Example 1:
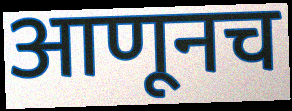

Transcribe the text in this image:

आणूनच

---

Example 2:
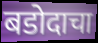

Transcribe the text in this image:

बडोदाचा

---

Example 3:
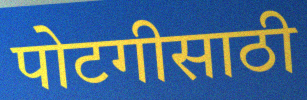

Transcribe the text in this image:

पोटगीसाठी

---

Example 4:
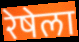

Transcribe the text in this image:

रेषेला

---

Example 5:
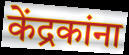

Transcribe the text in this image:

केंद्रकांना